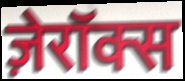
ज़ेरॉक्स